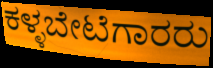
ಕಳ್ಳಬೇಟೆಗಾರರು